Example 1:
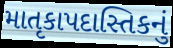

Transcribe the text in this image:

માતૃકાપદાસ્તિકનું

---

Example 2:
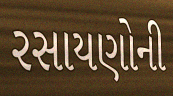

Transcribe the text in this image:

રસાયણોની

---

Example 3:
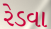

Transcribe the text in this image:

રેડવા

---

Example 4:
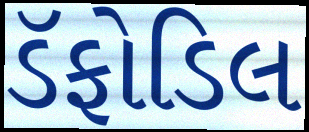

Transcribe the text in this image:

ડૅફોડિલ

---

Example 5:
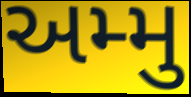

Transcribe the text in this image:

અમ્મુ